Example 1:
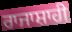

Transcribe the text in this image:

ਰਾਜਾਸ਼ਾਹੀ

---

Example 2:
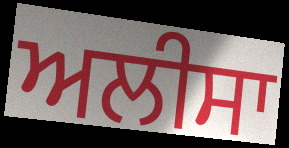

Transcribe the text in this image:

ਅਲੀਸਾ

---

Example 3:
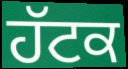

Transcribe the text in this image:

ਹੱਟਕ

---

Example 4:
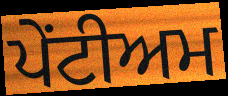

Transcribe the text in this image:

ਪੇਂਟੀਅਮ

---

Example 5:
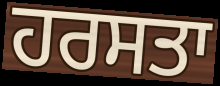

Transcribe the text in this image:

ਹਰਸਤਾ